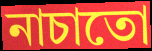
নাচাতো